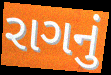
રાગનું